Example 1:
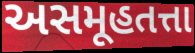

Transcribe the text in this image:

અસમૂહતત્તા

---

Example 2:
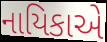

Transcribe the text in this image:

નાયિકાએ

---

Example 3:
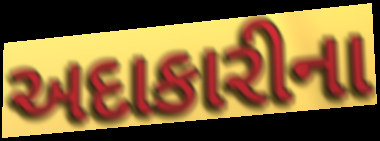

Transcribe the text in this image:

અદાકારીના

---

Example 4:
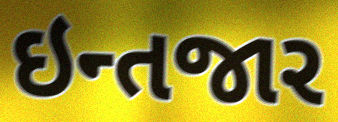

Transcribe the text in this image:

ઇન્તજાર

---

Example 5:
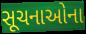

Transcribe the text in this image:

સૂચનાઓના